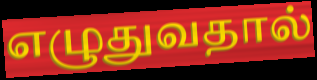
எழுதுவதால்